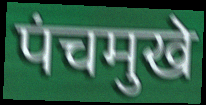
पंचमुखे